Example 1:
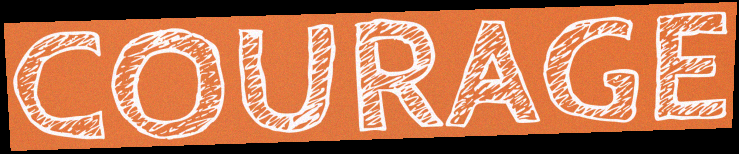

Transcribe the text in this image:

COURAGE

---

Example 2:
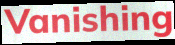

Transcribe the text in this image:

Vanishing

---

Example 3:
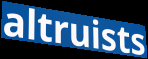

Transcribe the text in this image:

altruists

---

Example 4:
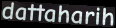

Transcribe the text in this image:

dattaharih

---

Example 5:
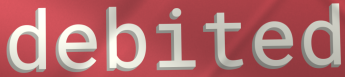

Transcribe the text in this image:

debited